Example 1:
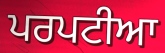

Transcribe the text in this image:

ਪਰਪਟੀਆ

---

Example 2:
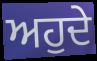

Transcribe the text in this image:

ਅਹੁਦੇ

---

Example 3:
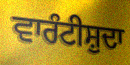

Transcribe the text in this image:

ਵਾਰੰਟੀਸ਼ੁਦਾ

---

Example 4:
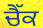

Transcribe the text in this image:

ਚੈੱਕ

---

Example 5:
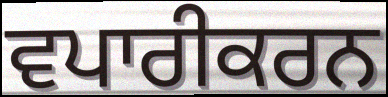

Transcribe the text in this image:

ਵਪਾਰੀਕਰਨ